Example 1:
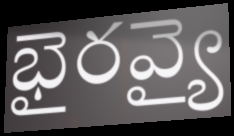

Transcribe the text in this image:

భైరవ్యై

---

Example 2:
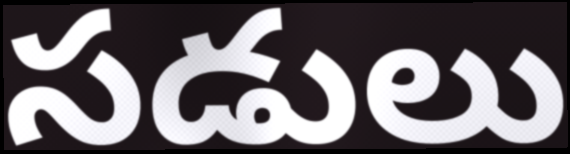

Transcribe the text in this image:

సడులు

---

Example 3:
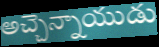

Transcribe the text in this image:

అచ్చెన్నాయుడు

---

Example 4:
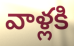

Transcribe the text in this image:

వాళ్లకి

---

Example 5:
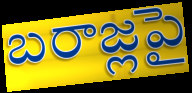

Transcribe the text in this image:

బరాజ్లపై